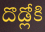
దొడ్లోకి